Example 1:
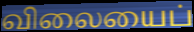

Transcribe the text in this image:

விலையைப்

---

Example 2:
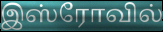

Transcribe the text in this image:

இஸ்ரோவில்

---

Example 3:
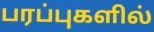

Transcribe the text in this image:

பரப்புகளில்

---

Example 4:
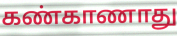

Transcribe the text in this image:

கண்காணாது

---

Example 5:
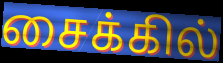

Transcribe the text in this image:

சைக்கில்